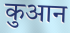
कुआन